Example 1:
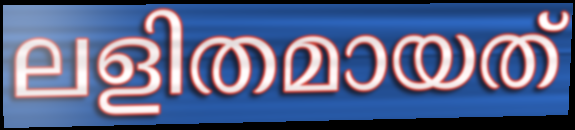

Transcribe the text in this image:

ലളിതമായത്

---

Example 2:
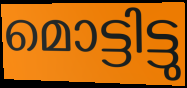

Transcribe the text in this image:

മൊട്ടിട്ടു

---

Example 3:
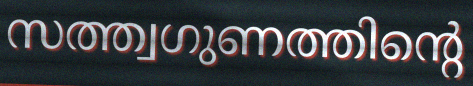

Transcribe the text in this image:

സത്ത്വഗുണത്തിന്റെ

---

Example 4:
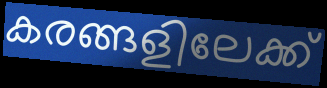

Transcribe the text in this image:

കരങ്ങളിലേക്ക്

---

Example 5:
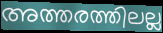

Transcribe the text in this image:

അത്തരത്തിലല്ല